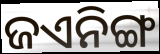
ଜଏନିଙ୍ଗ